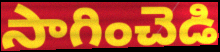
సాగించెడి